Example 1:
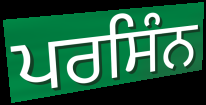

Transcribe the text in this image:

ਪਰਸਿੰਨ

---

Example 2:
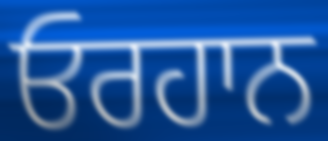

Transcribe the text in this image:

ਓਰਹਾਨ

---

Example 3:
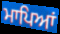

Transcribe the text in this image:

ਮਾਪਿਆਂ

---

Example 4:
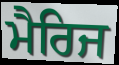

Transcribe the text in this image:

ਮੈਰਿਜ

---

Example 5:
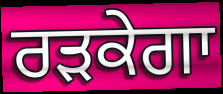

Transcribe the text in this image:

ਰੜਕੇਗਾ